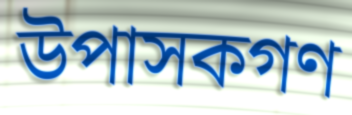
উপাসকগণ